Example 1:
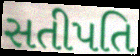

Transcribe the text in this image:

સતીપતિ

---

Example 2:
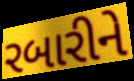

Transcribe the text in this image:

રબારીને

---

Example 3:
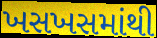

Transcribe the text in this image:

ખસખસમાંથી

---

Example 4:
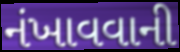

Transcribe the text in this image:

નંખાવવાની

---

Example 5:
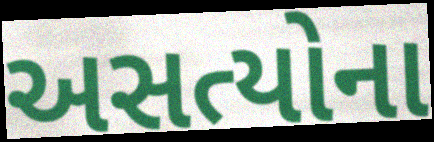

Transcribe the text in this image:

અસત્યોના